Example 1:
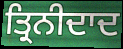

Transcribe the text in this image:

ਤ੍ਰਿਨੀਦਾਦ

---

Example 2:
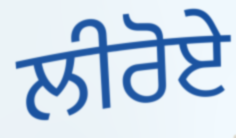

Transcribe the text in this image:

ਲੀਰੋਏ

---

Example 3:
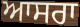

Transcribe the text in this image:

ਆਸਰਾ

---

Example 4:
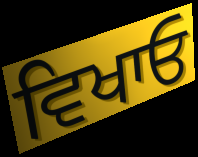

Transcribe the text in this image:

ਵਿਖਾਓ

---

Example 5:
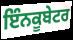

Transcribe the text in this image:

ਇੰਨਕੂਬੇਟਰ